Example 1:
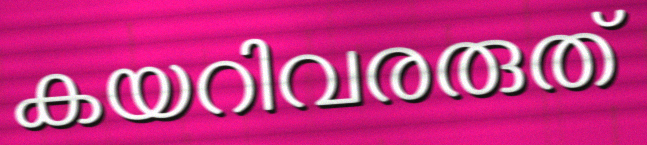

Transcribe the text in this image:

കയറിവരരുത്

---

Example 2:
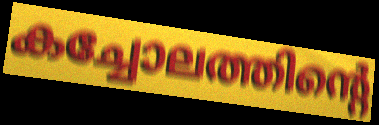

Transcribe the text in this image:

കച്ചോലത്തിന്റെ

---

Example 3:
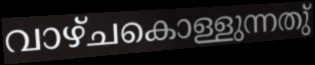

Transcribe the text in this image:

വാഴ്ചകൊള്ളുന്നതു്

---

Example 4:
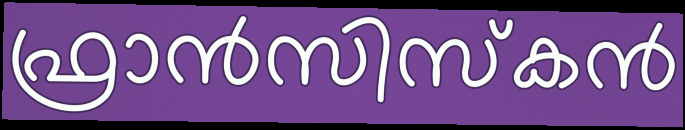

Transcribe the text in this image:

ഫ്രാൻസിസ്കൻ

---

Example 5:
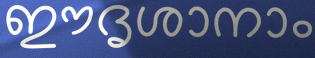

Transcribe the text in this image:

ഈദൃശാനാം